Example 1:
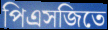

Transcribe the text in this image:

পিএসজিতে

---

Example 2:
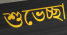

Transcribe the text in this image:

শুভেচ্ছা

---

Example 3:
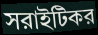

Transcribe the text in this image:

সরাইটিকর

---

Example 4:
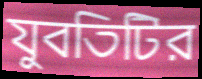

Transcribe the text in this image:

যুবতিটির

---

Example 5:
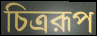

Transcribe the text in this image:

চিত্ররূপ